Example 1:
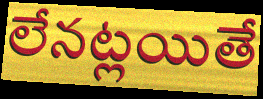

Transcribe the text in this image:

లేనట్లయితే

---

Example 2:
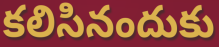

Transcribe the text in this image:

కలిసినందుకు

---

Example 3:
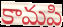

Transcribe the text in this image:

కామపి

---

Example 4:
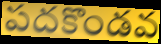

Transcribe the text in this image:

పదకొండవ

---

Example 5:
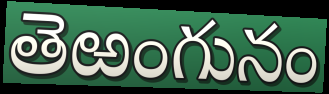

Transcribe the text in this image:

తెఱంగునం